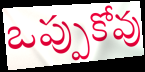
ఒప్పుకోవు